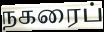
நகரைப்